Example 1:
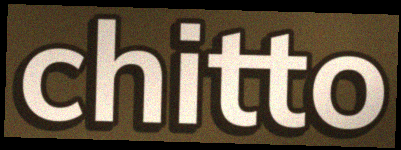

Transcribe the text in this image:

chitto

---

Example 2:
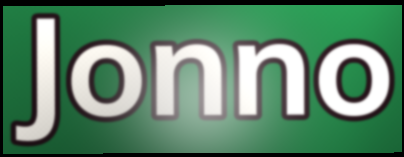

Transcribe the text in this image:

Jonno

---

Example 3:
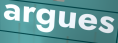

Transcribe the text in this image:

argues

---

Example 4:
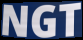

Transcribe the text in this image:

NGT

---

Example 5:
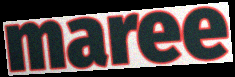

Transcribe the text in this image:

maree